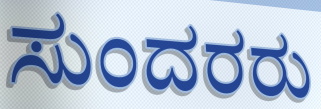
ಸುಂದರರು